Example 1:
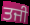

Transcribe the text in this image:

ਤਜੀ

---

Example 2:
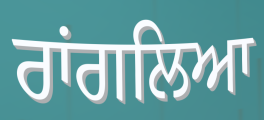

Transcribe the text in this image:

ਰਾਂਗਲਿਆ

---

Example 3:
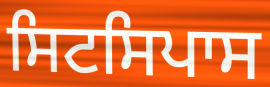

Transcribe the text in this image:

ਸਿਟਸਿਪਾਸ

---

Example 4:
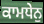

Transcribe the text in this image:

ਕਾਮਧੇਨੁ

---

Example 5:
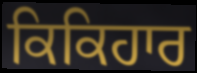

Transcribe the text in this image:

ਕਿਕਿਹਾਰ